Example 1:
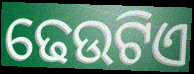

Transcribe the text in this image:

ଢେଉଟିଏ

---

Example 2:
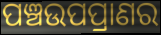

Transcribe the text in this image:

ପଞ୍ଚଉପପ୍ରାଣର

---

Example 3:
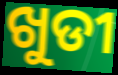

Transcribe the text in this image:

ଖୁଡୀ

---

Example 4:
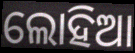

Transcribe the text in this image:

ଲୋହିଆ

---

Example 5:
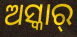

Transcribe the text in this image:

ଅସ୍କାର୍